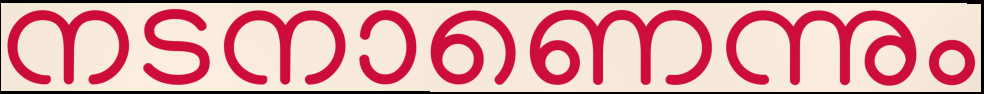
നടനാണെന്നും